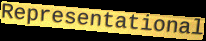
Representational